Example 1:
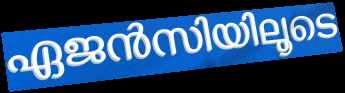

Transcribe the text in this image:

ഏജൻസിയിലൂടെ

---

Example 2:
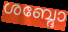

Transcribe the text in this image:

ശബ്ദോ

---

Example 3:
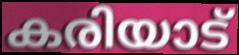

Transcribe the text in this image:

കരിയാട്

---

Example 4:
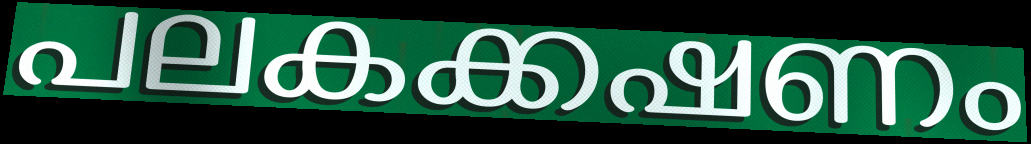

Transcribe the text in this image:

പലകക്കഷണം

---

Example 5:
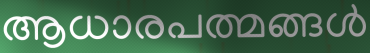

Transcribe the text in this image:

ആധാരപത്മങ്ങൾ